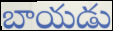
బాయడు